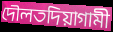
দৌলতদিয়াগামী